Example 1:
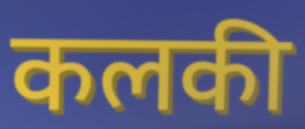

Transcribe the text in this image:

कलकी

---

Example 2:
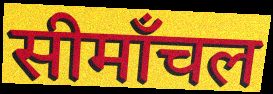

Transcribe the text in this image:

सीमाँचल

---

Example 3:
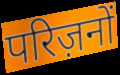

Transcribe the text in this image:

परिज़नों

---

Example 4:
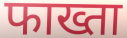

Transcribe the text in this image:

फाख्ता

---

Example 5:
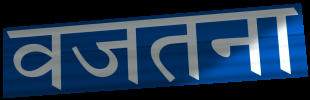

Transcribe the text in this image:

वजतना